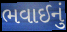
ભવાઈનું